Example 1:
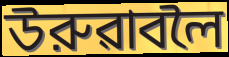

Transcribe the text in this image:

উৰুৱাবলৈ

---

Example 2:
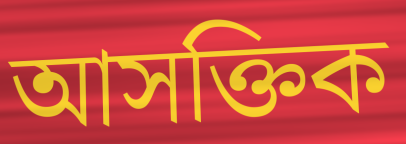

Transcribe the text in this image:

আসক্তিক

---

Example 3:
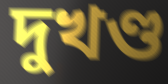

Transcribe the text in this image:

দুখণ্ড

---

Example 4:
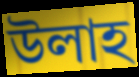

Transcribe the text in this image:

উলাহ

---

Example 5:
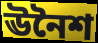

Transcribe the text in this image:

ঊনৈশ